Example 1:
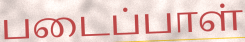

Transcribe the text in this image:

படைப்பாள்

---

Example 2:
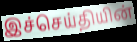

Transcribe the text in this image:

இச்செய்தியின்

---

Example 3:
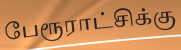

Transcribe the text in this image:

பேரூராட்சிக்கு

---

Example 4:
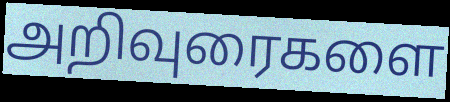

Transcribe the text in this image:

அறிவுரைகளை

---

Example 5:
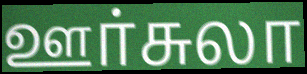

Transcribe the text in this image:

ஊர்சுலா